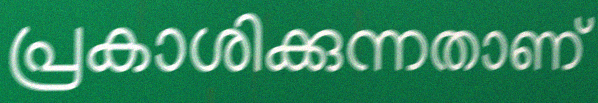
പ്രകാശിക്കുന്നതാണ്